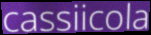
cassiicola